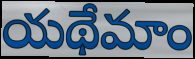
యథేమాం